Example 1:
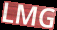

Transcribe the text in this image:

LMG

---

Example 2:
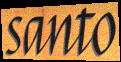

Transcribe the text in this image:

santo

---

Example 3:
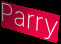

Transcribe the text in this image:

Parry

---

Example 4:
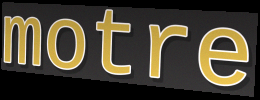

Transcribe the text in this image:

motre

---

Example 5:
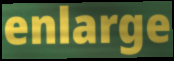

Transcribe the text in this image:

enlarge